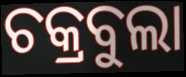
ଚକ୍ରବୁଲା